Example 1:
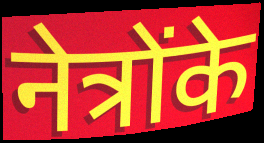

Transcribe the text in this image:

नेत्रोंके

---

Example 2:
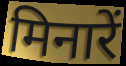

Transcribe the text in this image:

मिनारें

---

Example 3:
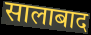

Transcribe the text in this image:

सालाबाद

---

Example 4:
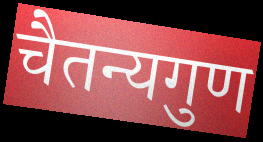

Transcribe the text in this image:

चैतन्यगुण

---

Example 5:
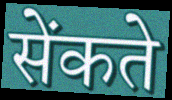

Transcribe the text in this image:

सेंकते